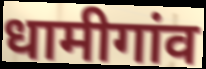
धामीगांव